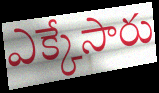
ఎక్కేసారు